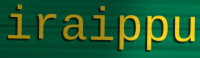
iraippu